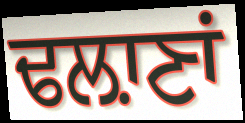
ਢਲ਼ਾਣਾਂ